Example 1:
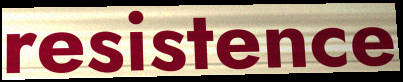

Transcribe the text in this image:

resistence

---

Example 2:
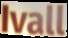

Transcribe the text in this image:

Ivall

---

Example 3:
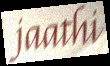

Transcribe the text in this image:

jaathi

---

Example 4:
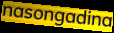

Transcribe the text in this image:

nasongadina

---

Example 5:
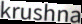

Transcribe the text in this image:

krushna